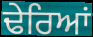
ਢੇਰਿਆਂ